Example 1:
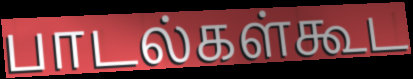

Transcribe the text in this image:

பாடல்கள்கூட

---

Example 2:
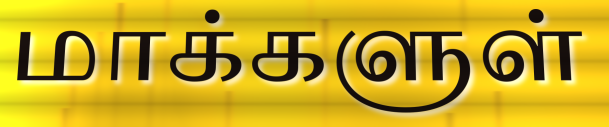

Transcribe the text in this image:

மாக்களுள்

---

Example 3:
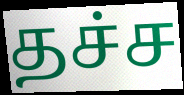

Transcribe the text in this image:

தச்ச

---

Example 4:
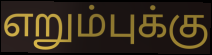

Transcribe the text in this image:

எறும்புக்கு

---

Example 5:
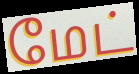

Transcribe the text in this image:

மேட்